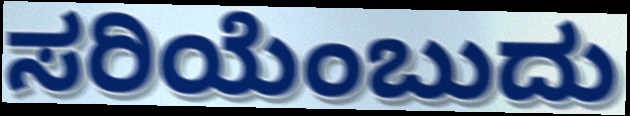
ಸರಿಯೆಂಬುದು